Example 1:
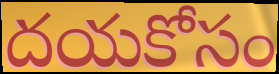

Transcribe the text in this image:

దయకోసం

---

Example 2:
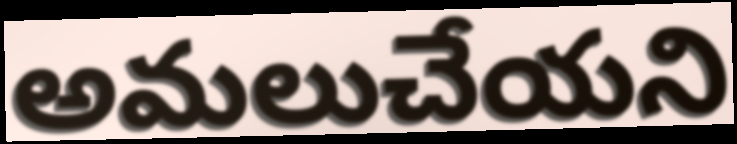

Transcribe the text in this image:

అమలుచేయని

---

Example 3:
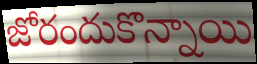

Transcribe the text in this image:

జోరందుకొన్నాయి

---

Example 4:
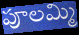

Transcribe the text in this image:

పూలమ్మి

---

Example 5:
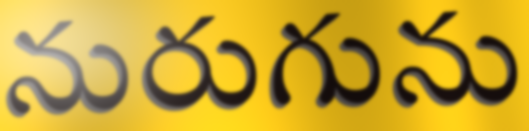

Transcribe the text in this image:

నురుగును